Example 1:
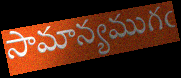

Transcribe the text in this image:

సామాన్యముగఁ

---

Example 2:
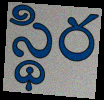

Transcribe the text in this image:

స్థిర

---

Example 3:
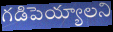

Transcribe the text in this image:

గడిపెయ్యాలని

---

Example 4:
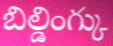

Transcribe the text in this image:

బిల్డింగ్కు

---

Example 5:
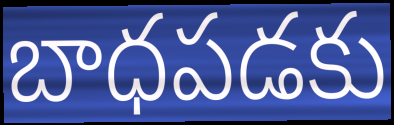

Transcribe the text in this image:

బాధపడకు